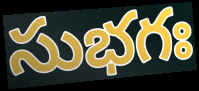
సుభగః